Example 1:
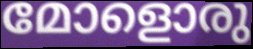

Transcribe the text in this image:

മോളൊരു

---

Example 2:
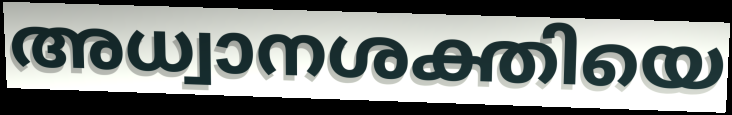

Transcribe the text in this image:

അധ്വാനശക്തിയെ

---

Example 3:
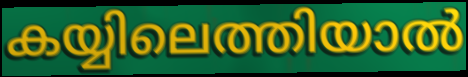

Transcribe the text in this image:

കയ്യിലെത്തിയാൽ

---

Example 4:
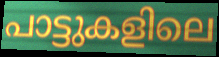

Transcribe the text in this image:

പാട്ടുകളിലെ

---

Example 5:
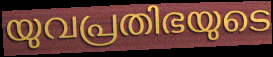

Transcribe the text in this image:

യുവപ്രതിഭയുടെ